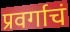
प्रवर्गाचं